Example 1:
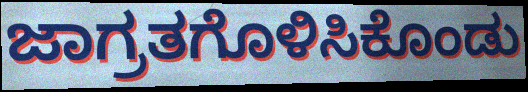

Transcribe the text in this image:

ಜಾಗ್ರತಗೊಳಿಸಿಕೊಂಡು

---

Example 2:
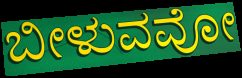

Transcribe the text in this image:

ಬೀಳುವವೋ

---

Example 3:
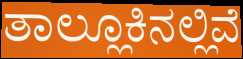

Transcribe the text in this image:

ತಾಲ್ಲೂಕಿನಲ್ಲಿವೆ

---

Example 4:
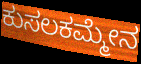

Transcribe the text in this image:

ಕುಸಲಕಮ್ಮೇನ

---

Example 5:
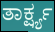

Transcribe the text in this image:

ತಾರ್ಕ್ಷ್ಯ